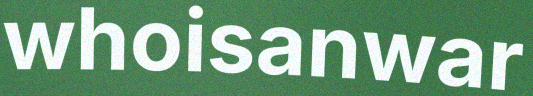
whoisanwar